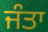
ਜੰਤਾ